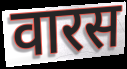
वारस